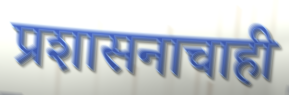
प्रशासनाचाही